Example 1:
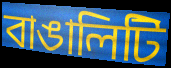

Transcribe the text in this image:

বাঙালিটি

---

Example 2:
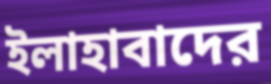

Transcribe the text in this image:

ইলাহাবাদের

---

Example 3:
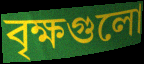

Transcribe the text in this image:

বৃক্ষগুলো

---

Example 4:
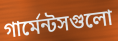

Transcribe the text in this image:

গার্মেন্টসগুলো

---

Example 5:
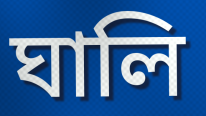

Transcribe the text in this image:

ঘালি